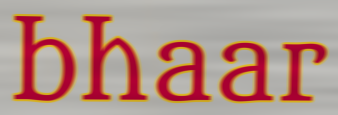
bhaar